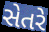
સેતરે